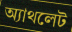
অ্যাথলেট